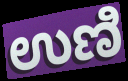
ಉಣಿ